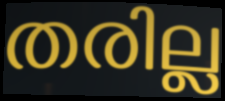
തരില്ല